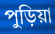
পুড়িয়া